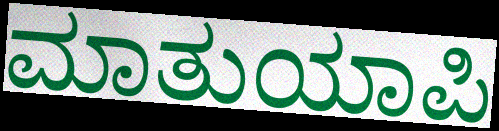
ಮಾತುಯಾಪಿ